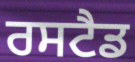
ਰਸਟੈਡ